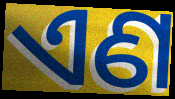
ଏଣ